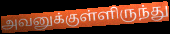
அவனுக்குள்ளிருந்து